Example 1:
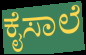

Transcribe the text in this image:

ಕೈಸಾಲೆ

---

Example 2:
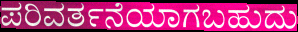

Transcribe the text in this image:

ಪರಿವರ್ತನೆಯಾಗಬಹುದು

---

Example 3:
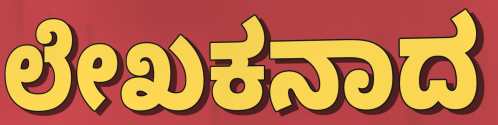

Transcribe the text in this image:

ಲೇಖಕನಾದ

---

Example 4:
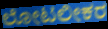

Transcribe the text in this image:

ಲೋಟಲೀಕರ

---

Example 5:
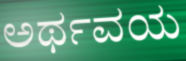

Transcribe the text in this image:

ಅರ್ಥವಯ